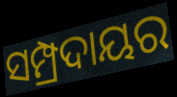
ସମ୍ପ୍ରଦାୟର